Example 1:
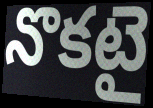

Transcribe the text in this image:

నొకటై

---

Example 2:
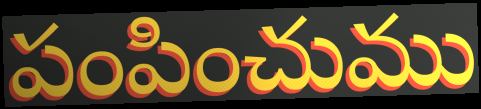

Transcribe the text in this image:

పంపించుము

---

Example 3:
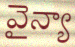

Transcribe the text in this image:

వైన్యా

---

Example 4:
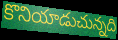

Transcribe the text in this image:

కొనియాడుచున్నది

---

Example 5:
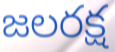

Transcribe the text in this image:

జలరక్ష